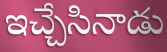
ఇచ్చేసినాడు